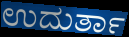
ಉದುರ್ತಾ